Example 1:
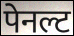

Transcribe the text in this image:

पेनल्ट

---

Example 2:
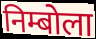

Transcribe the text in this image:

निम्बोला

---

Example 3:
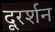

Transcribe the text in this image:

दूरर्शन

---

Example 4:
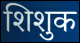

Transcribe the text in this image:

शिशुक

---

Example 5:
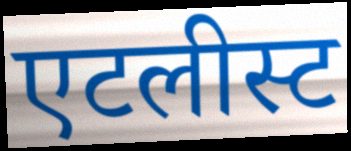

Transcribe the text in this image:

एटलीस्ट